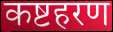
कष्टहरण